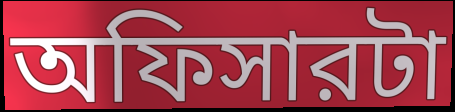
অফিসারটা